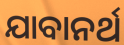
ଯାବାନର୍ଥ